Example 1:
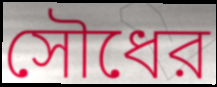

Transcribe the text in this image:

সৌধের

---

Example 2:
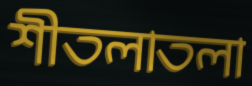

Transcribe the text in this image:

শীতলাতলা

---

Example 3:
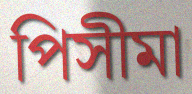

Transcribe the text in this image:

পিসীমা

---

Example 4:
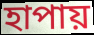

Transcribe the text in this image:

হাপায়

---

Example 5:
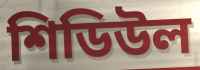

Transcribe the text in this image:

শিডিউল